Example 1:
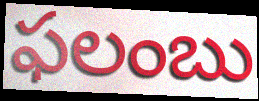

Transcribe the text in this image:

ఫలంబు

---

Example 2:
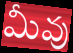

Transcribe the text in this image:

మీవు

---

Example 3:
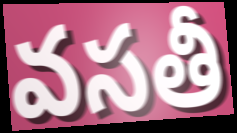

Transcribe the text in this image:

వసతీ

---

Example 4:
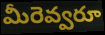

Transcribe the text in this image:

మీరెవ్వరూ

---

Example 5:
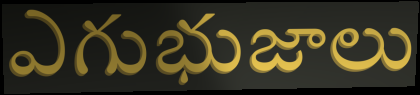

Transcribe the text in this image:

ఎగుభుజాలు